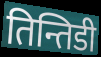
तिन्तिडी